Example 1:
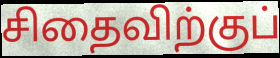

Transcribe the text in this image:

சிதைவிற்குப்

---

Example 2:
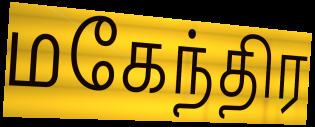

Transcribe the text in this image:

மகேந்திர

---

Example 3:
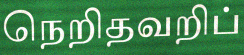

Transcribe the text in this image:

நெறிதவறிப்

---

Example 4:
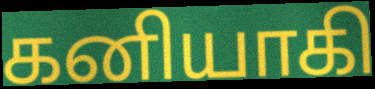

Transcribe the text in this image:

கனியாகி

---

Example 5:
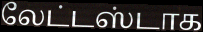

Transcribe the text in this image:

லேட்டஸ்டாக